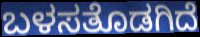
ಬಳಸತೊಡಗಿದೆ